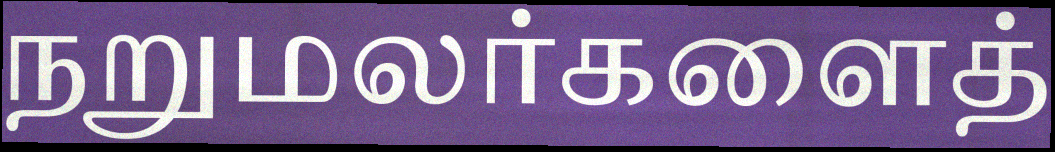
நறுமலர்களைத்